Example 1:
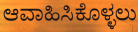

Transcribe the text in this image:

ಆವಾಹಿಸಿಕೊಳ್ಳಲು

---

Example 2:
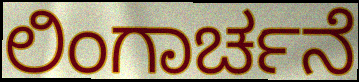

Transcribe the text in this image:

ಲಿಂಗಾರ್ಚನೆ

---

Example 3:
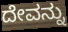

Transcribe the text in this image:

ದೇವನ್ನು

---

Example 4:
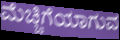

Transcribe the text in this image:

ಮೆಚ್ಚಿಗೆಯಾಗುವ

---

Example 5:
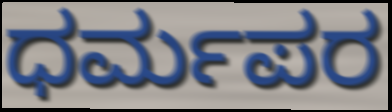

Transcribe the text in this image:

ಧರ್ಮಪರ